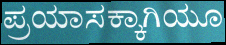
ಪ್ರಯಾಸಕ್ಕಾಗಿಯೂ